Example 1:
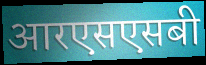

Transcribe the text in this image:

आरएसएसबी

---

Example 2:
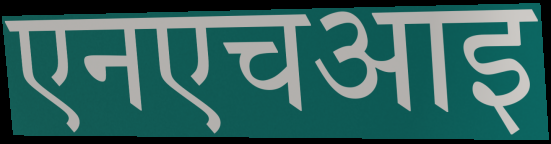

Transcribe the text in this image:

एनएचआइ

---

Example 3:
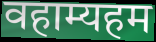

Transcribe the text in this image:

वहाम्यहम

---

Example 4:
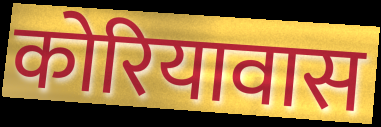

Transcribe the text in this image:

कोरियावास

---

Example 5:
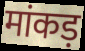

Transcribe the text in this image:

मांकड़